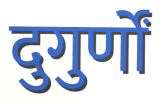
दुगुर्णों